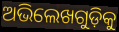
ଅଭିଲେଖଗୁଡ଼ିକୁ